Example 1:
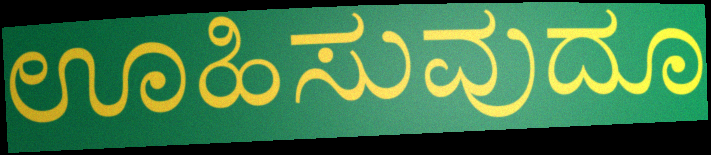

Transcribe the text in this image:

ಊಹಿಸುವುದೂ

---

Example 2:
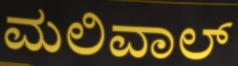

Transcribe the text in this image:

ಮಲಿವಾಲ್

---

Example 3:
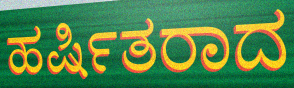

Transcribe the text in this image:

ಹರ್ಷಿತರಾದ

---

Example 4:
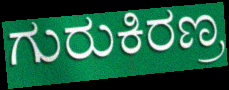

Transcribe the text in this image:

ಗುರುಕಿರಣ್ರ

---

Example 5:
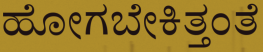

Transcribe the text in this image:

ಹೋಗಬೇಕಿತ್ತಂತೆ